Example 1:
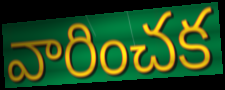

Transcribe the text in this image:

వారించక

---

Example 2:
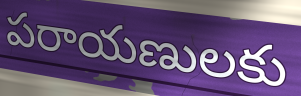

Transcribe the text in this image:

పరాయణులకు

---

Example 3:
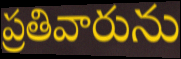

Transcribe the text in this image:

ప్రతివారును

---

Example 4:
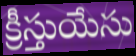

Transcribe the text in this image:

క్రీస్తుయేసు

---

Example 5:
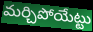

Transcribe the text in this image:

మర్చిపోయేట్టు